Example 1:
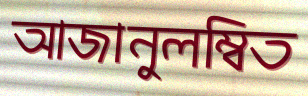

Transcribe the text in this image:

আজানুলম্বিত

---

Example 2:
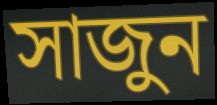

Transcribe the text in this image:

সাজুন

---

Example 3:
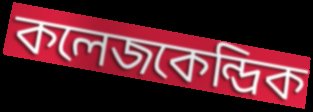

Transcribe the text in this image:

কলেজকেন্দ্রিক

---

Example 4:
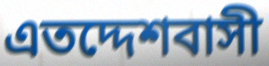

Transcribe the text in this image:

এতদ্দেশবাসী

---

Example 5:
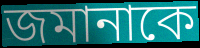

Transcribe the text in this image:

জমানাকে